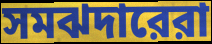
সমঝদারেরা